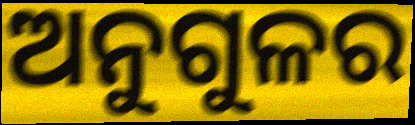
ଅନୁଗୁଳର